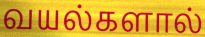
வயல்களால்